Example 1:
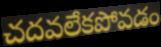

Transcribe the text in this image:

చదవలేకపోవడం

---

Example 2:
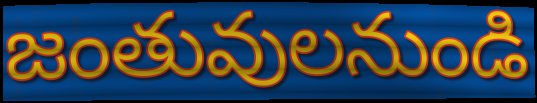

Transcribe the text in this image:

జంతువులనుండి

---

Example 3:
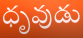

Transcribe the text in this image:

ధృవుడు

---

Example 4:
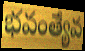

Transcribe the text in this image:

భవంత్యేవ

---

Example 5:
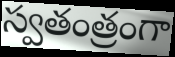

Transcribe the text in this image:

స్వతంత్రంగా